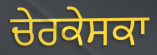
ਚੇਰਕੇਸਕਾ